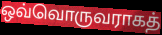
ஒவ்வொருவராகத்